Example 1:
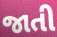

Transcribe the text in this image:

જાતી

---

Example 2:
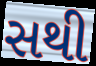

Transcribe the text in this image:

સથી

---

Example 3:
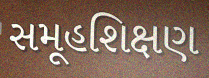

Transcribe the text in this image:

સમૂહશિક્ષણ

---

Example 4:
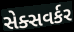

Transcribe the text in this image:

સેક્સવર્કર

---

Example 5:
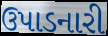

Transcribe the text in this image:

ઉપાડનારી